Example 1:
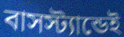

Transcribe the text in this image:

বাসস্ট্যান্ডেই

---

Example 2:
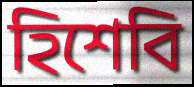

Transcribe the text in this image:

হিশেবি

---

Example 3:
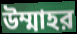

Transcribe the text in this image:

উম্মাহর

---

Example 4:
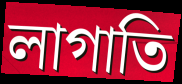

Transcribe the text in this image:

লাগাতি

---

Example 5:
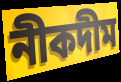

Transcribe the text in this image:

নীকদীম